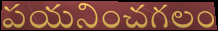
పయనించగలం